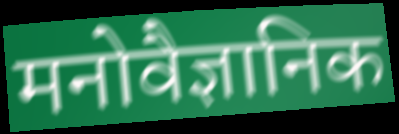
मनोवैज्ञानिक